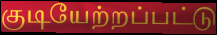
குடியேற்றப்பட்டு